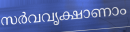
സർവവൃക്ഷാണാം